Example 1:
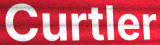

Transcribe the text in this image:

Curtler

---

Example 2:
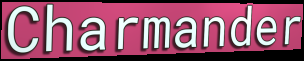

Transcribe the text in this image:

Charmander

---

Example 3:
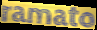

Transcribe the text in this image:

ramato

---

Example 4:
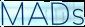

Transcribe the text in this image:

MADs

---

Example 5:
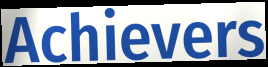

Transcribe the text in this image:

Achievers